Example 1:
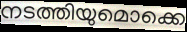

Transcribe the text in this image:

നടത്തിയുമൊക്കെ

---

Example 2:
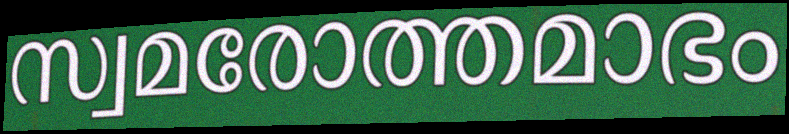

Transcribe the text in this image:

സ്വമരോത്തമാഭം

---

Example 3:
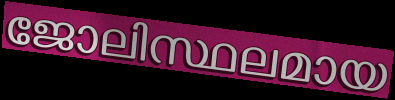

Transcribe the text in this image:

ജോലിസ്ഥലമായ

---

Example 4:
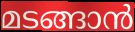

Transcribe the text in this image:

മടങ്ങാൻ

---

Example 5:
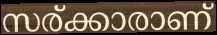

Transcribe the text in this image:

സര്ക്കാരാണ്